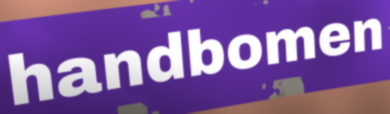
handbomen